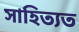
সাহিত্যত